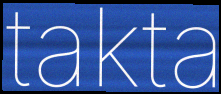
takta